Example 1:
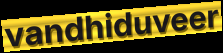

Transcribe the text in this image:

vandhiduveer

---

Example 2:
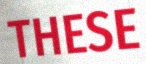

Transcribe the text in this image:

THESE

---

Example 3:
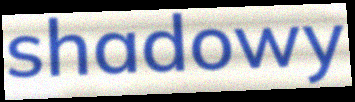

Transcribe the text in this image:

shadowy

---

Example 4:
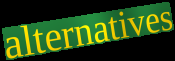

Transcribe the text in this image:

alternatives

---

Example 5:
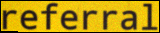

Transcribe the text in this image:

referral